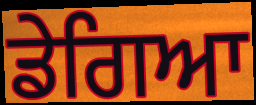
ਡੇਗਿਆ